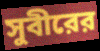
সুবীরের